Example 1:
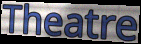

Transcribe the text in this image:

Theatre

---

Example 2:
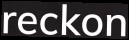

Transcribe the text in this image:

reckon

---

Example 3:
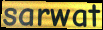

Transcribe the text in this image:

sarwat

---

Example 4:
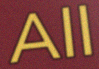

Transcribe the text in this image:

All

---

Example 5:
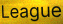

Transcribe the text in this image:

League